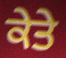
ਕੇਤੇ